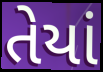
તેયાં